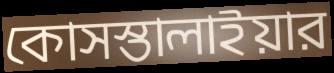
কোসস্তালাইয়ার